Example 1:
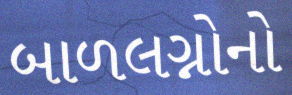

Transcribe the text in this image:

બાળલગ્નોનો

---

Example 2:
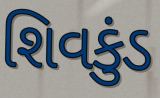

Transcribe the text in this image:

શિવકુંડ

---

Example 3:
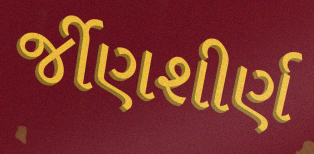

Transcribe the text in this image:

ર્જીણશીર્ણ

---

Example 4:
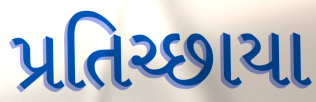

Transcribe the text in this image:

પ્રતિચ્છાયા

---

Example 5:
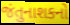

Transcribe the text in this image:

જંતુનાશકનો